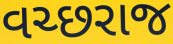
વચ્છરાજ